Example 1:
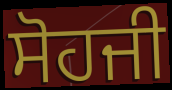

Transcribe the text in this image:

ਸੋਹਜੀ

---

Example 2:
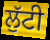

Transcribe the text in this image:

ਲੁੱਟੀ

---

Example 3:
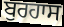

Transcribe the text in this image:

ਬੁਰਹਾਸ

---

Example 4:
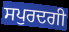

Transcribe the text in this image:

ਸਪੁਰਦਗੀ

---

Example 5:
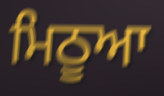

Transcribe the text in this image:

ਮਿਠੂਆ